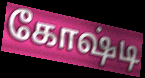
கோஷ்டி